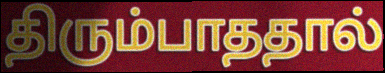
திரும்பாததால்